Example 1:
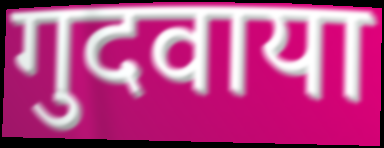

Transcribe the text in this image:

गुदवाया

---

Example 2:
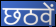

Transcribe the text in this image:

छठवें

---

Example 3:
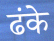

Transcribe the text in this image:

ढंके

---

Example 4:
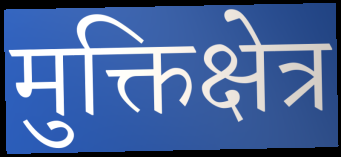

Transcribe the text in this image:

मुक्तिक्षेत्र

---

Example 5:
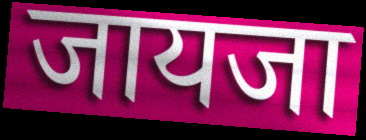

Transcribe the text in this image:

जायजा